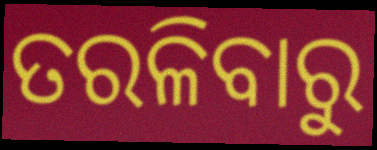
ତରଳିବାରୁ